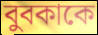
বুবকাকে